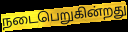
நடைபெறுகின்றது